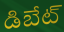
డిబేట్